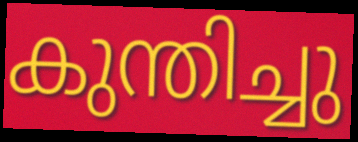
കുന്തിച്ചു